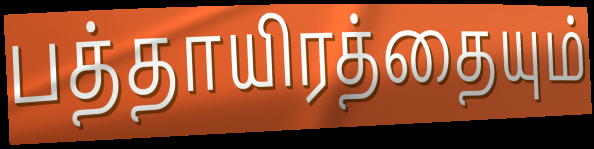
பத்தாயிரத்தையும்